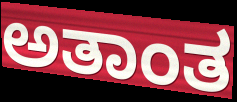
ಅತಾಂತ